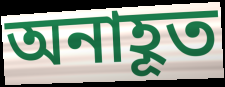
অনাহূত